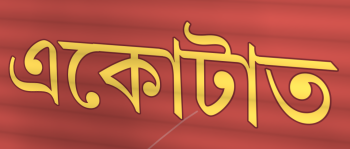
একোটাত